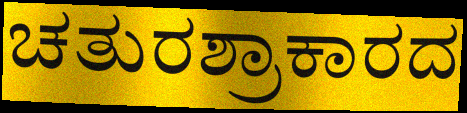
ಚತುರಶ್ರಾಕಾರದ